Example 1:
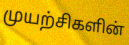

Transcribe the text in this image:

முயற்சிகளின்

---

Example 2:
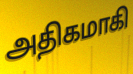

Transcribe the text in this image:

அதிகமாகி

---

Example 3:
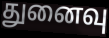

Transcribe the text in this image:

துனைவு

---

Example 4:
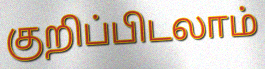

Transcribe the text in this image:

குறிப்பிடலாம்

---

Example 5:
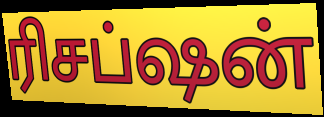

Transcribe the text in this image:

ரிசப்ஷன்